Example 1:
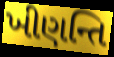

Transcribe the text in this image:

ખીણન્તિ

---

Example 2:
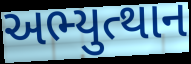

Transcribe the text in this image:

અભ્યુત્થાન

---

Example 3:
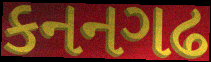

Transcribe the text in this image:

કનનગઢ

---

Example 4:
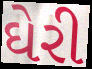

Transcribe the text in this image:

ઘેરી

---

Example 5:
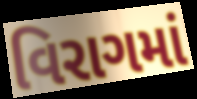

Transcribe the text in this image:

વિરાગમાં